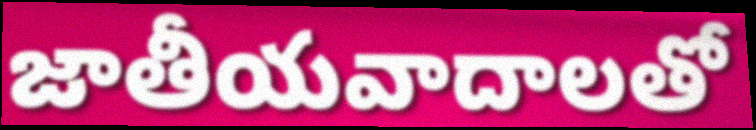
జాతీయవాదాలతో